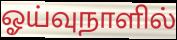
ஓய்வுநாளில்